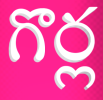
గొర్ల